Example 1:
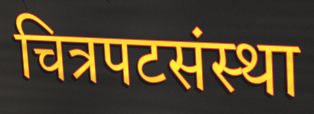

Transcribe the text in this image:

चित्रपटसंस्था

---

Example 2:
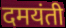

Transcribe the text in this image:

दमयंती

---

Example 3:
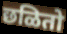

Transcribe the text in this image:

छळितो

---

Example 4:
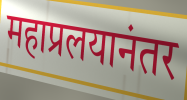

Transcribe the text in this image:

महाप्रलयानंतर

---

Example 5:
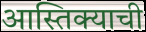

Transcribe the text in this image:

आस्तिक्याची